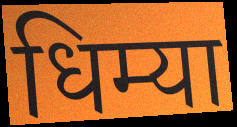
धिम्या